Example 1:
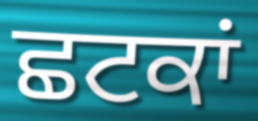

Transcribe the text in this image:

ਛਟਕਾਂ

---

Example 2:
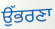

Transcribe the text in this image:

ਉੱਭਰਣਾ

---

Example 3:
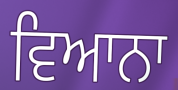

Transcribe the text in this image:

ਵਿਆਨਾ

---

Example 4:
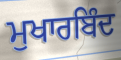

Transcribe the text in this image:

ਮੁਖਾਰਬਿੰਦ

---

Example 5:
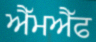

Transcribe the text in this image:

ਐੱਮਐੱਫ